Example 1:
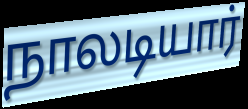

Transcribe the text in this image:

நாலடியார்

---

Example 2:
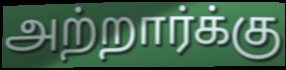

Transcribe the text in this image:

அற்றார்க்கு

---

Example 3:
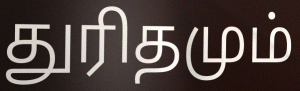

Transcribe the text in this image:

துரிதமும்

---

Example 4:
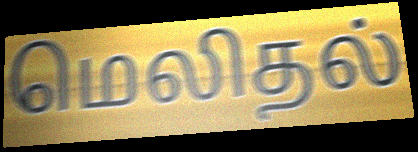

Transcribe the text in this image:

மெலிதல்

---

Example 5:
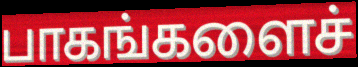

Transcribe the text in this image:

பாகங்களைச்